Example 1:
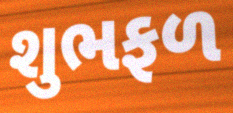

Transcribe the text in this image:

શુભફળ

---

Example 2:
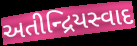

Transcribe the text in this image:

અતીન્દ્રિયસ્વાદ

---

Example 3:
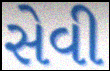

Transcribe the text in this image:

સેવી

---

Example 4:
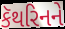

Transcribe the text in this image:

કૅથરિનને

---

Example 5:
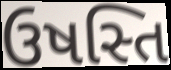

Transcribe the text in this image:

ઉષસ્તિ